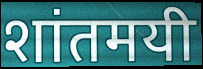
शांतमयी